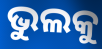
ଭୁଲକୁ